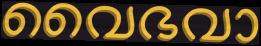
വൈഭവാ